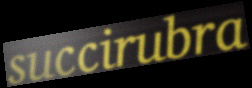
succirubra